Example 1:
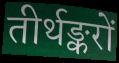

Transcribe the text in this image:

तीर्थङ्करों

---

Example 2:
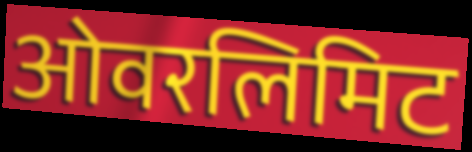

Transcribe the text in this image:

ओवरलिमिट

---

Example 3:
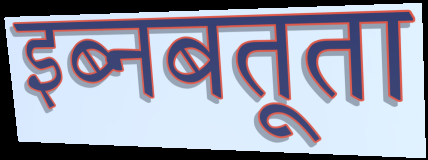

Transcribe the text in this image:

इब्नबतूता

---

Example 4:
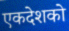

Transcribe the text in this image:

एकदेशको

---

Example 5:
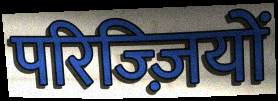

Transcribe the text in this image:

परिज्ज़ियों